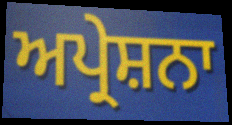
ਅਪ੍ਰੇਸ਼ਨਾ